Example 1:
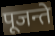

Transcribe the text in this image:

पूजन्ते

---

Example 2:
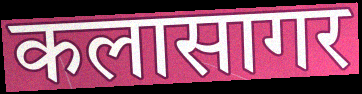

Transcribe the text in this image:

कलासागर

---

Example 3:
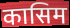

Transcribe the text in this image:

कासिम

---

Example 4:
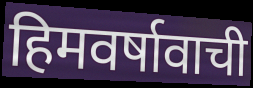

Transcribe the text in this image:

हिमवर्षावाची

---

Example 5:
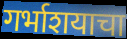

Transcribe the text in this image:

गर्भाशयाचा